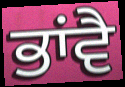
ਭਾਂਵੈ